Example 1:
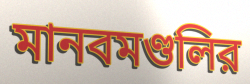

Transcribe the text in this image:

মানবমণ্ডলির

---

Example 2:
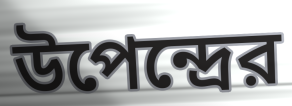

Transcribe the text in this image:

উপেন্দ্রের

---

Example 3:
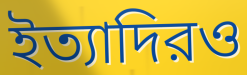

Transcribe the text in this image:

ইত্যাদিরও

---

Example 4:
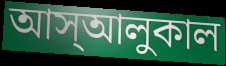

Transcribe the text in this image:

আস্আলুকাল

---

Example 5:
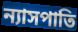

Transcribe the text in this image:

ন্যাসপাতি